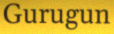
Gurugun